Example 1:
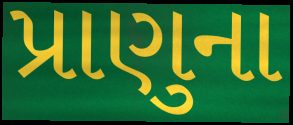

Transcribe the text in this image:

પ્રાણુના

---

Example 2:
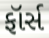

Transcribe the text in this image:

ફૉર્સ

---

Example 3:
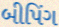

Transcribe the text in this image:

બીપિંગ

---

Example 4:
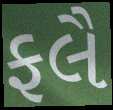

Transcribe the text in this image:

ફલૈ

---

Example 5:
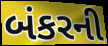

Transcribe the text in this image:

બંકરની